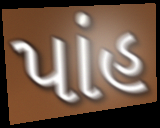
પાંહ